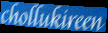
chollukireen